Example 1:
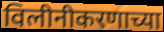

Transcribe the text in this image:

विलीनीकरणाच्या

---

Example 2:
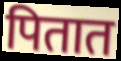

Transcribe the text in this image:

पितात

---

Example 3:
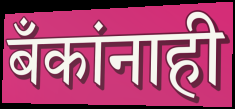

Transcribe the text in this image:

बँकांनाही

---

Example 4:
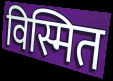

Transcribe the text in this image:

विस्मित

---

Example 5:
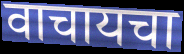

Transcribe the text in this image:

वाचायचा